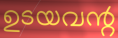
ഉടയവന്റ